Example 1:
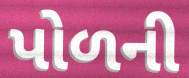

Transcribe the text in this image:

પોળની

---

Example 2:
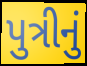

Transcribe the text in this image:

પુત્રીનું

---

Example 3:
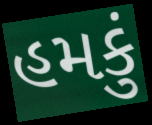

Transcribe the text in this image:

હમકું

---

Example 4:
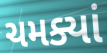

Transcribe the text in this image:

ચમક્યાં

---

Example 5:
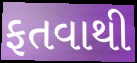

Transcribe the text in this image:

ફતવાથી